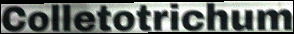
Colletotrichum